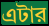
এটার